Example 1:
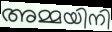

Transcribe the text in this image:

അമ്മയിനി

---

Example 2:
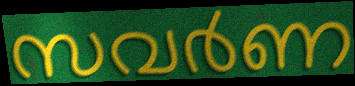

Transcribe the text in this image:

സവർണ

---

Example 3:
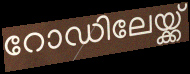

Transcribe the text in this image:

റോഡിലേയ്ക്ക്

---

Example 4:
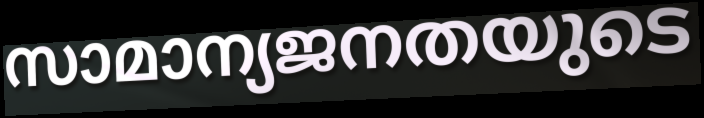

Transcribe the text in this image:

സാമാന്യജനതയുടെ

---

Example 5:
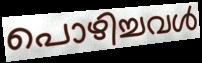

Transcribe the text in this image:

പൊഴിച്ചവൾ